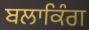
ਬਲਾਕਿੰਗ